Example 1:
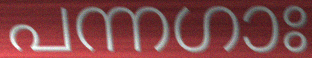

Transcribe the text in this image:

പന്നഗാഃ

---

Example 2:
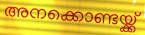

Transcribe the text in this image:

അനക്കൊണ്ടയ്ക്ക്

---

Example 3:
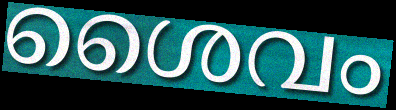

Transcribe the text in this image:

ശൈവം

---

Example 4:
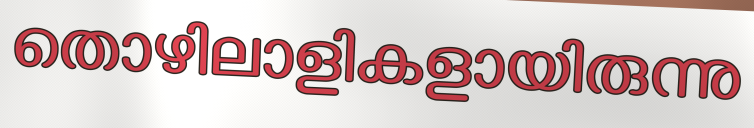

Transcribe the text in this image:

തൊഴിലാളികളായിരുന്നു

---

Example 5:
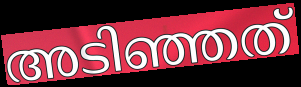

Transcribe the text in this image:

അടിഞ്ഞത്